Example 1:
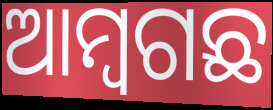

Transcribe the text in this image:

ଆମ୍ୱଗଛ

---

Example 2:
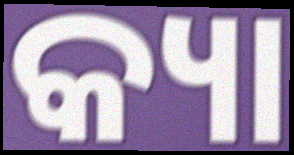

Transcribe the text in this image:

କ୍ୟା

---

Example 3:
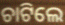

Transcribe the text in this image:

ଚାଟିଲେ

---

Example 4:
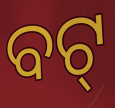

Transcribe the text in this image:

ବଟ୍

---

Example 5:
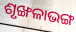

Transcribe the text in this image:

ଶୃଙ୍ଖଳାଭଙ୍ଗ